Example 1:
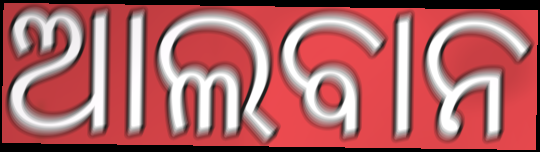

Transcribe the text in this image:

ଆଲବାନ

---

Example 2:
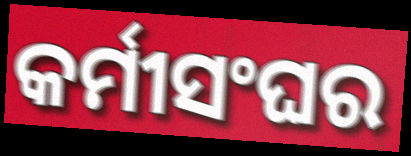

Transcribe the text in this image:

କର୍ମୀସଂଘର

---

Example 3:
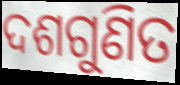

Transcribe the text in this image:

ଦଶଗୁଣିତ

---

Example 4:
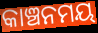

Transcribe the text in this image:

କାଞ୍ଚନମୟ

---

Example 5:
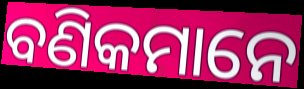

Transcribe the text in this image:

ବଣିକମାନେ